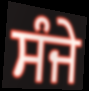
ਸੰਜੇ